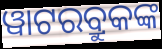
ୱାଟରବ୍ରୁକଙ୍କ